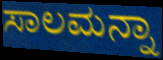
ಸಾಲಮನ್ನಾ